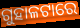
ଗୁହାଳଟାରେ